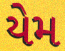
યેમ